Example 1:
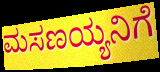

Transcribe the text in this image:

ಮಸಣಯ್ಯನಿಗೆ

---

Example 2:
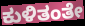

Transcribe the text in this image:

ಕುಳಿತಂತೇ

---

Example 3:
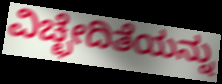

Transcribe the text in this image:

ವಿಚ್ಛೇದಿತೆಯನ್ನು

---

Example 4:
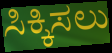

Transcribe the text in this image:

ಸಿಕ್ಕಿಸಲು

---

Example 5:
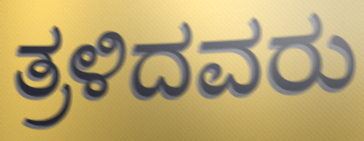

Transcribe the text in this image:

ತ್ರಳಿದವರು